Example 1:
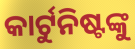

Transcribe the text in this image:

କାର୍ଟୁନିଷ୍ଟଙ୍କୁ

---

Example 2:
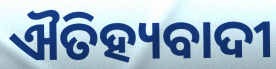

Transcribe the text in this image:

ଐତିହ୍ୟବାଦୀ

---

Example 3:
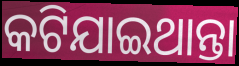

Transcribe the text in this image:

କଟିଯାଇଥାନ୍ତା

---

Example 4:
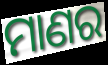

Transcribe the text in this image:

ମାଣର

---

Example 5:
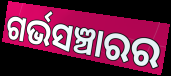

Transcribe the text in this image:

ଗର୍ଭସଞ୍ଚାରର